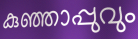
കുഞ്ഞാപ്പുവും